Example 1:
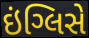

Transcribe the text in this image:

ઇંગ્લિસે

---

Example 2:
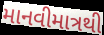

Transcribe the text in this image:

માનવીમાત્રથી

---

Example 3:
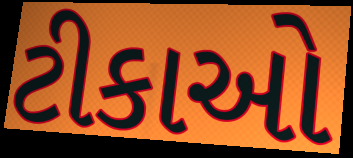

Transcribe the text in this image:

ટીકાઓ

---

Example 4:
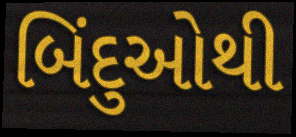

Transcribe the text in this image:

બિંદુઓથી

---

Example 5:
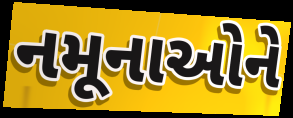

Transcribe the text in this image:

નમૂનાઓને